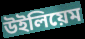
উইলিয়েম